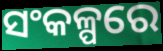
ସଂକଳ୍ପରେ